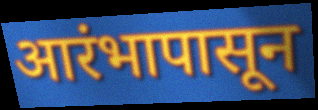
आरंभापासून